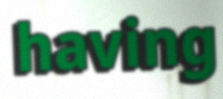
having